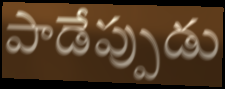
పాడేప్పుడు